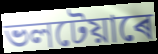
ভলটেয়াৰে